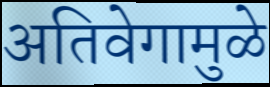
अतिवेगामुळे